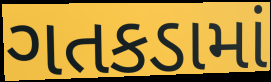
ગતકડામાં